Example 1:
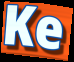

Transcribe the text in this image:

Ke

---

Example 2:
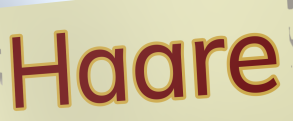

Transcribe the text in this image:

Haare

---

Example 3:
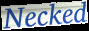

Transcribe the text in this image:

Necked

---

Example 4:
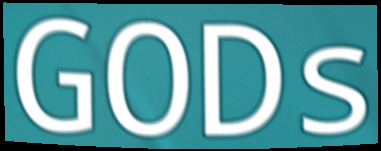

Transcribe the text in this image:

GODs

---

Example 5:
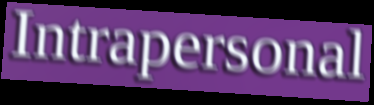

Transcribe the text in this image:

Intrapersonal